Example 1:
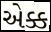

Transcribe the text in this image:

એક્ક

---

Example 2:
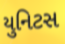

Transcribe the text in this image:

યુનિટસ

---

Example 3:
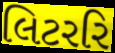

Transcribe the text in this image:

લિટરરિ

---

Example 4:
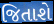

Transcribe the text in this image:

જિતાશે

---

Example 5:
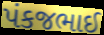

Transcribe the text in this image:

પંકજભાઈ